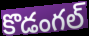
కొడంగల్